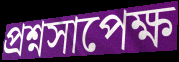
প্রশ্নসাপেক্ষ